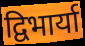
द्विभार्या